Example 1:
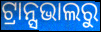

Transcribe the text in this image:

ଟ୍ରାନ୍ସଭାଲରୁ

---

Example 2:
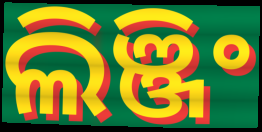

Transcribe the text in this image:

ଲିଞ୍ଜିଂ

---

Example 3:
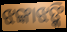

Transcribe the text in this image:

ଝଙ୍କାଝଙ୍କି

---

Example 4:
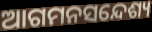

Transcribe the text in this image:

ଆଗମନସନ୍ଦେଶ୍ୟ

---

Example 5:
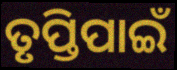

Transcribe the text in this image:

ତୃପ୍ତିପାଇଁ